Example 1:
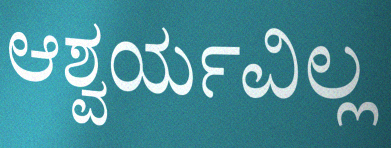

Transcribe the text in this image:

ಆಶ್ವರ್ಯವಿಲ್ಲ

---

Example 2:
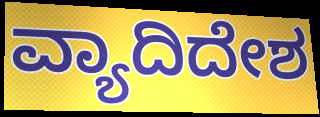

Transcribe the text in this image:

ವ್ಯಾದಿದೇಶ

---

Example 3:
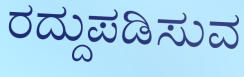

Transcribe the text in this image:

ರದ್ದುಪಡಿಸುವ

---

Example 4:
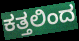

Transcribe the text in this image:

ಕತ್ತಲಿಂದ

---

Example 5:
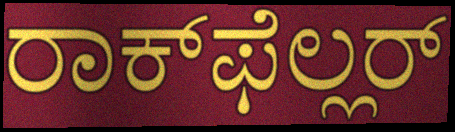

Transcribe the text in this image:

ರಾಕ್‌ಫೆಲ್ಲರ್